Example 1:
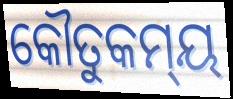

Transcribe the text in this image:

କୌତୁକମ୍‍ୟ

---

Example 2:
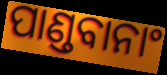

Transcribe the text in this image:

ପାଣ୍ଡବାନାଂ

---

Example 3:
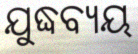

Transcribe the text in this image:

ଯୁଦ୍ଧବ୍ୟୟ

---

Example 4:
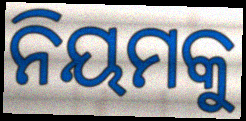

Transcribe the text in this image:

ନିୟମକୁ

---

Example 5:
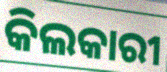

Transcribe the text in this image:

କିଲକାରୀ